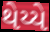
થેય્યે